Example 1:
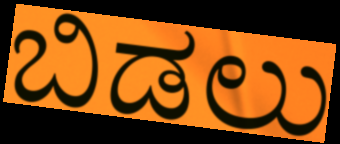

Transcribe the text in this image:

ಬಿಡಲು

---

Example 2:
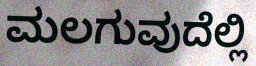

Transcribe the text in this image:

ಮಲಗುವುದೆಲ್ಲಿ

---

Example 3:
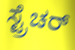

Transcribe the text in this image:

ಸ್ಟ್ರೆಚರ್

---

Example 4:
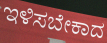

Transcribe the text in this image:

ಇಳಿಸಬೇಕಾದ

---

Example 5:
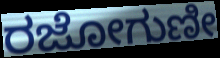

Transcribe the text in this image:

ರಜೋಗುಣೀ